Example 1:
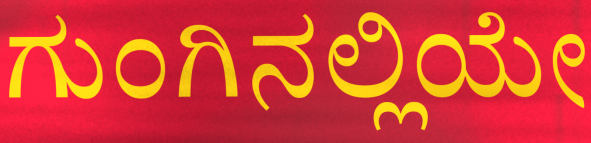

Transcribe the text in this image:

ಗುಂಗಿನಲ್ಲಿಯೇ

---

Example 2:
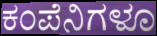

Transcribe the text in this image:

ಕಂಪೆನಿಗಳೂ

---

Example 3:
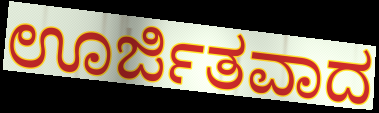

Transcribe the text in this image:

ಊರ್ಜಿತವಾದ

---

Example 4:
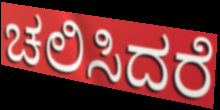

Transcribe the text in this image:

ಚಲಿಸಿದರೆ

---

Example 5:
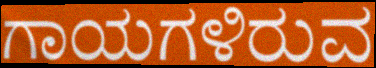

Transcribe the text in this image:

ಗಾಯಗಳಿರುವ